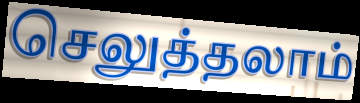
செலுத்தலாம்